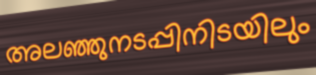
അലഞ്ഞുനടപ്പിനിടയിലും